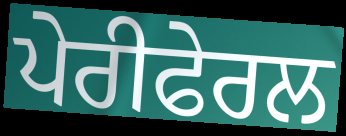
ਪੇਰੀਫੇਰਲ